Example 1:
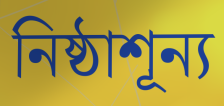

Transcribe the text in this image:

নিষ্ঠাশূন্য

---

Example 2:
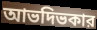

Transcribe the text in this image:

আভদিভকার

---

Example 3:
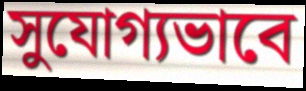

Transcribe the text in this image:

সুযোগ্যভাবে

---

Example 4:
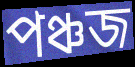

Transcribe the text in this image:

পঞ্চজ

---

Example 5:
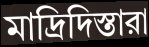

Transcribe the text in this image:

মাদ্রিদিস্তারা